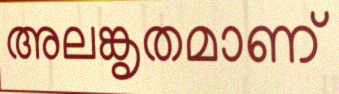
അലങ്കൃതമാണ്